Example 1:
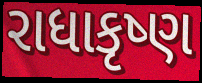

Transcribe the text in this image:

રાધાકૃષ્ણ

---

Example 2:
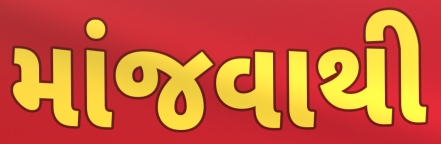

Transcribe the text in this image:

માંજવાથી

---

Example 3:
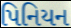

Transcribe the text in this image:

પિનિયન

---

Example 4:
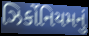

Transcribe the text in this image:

ઝિર્કોનિયમનું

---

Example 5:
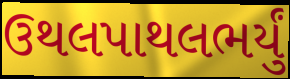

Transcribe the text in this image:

ઉથલપાથલભર્યું